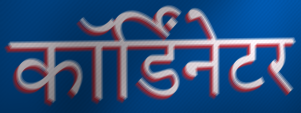
कॉर्डिंनेटर